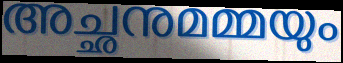
അച്ഛനുമമ്മയും